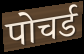
पोचर्ड